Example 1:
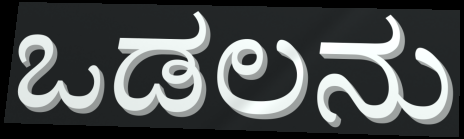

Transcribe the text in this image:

ಒಡಲನು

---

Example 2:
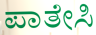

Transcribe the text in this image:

ಪಾತೇಸಿ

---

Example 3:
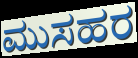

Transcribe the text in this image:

ಮುಸಹರ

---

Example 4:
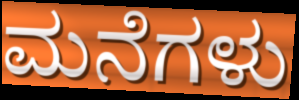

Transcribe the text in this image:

ಮನೆಗಳು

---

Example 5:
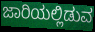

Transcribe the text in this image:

ಜಾರಿಯಲ್ಲಿಡುವ